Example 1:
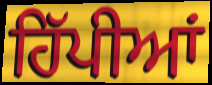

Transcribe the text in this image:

ਹਿੱਪੀਆਂ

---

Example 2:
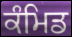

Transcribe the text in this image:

ਕੰਮਿਡ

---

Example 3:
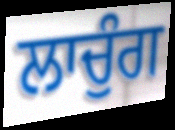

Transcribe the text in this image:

ਲਾਚੁੰਗ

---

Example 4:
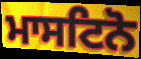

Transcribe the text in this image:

ਮਾਸਟਿਨੋ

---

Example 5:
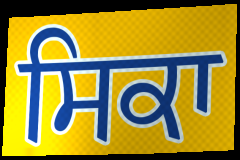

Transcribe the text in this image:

ਸਿਕਾ